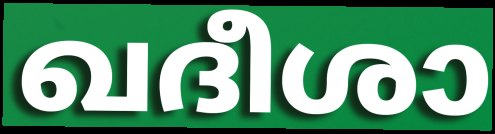
ഖദീശാ